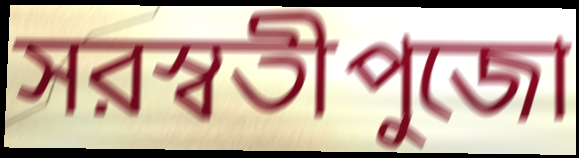
সরস্বতীপুজো